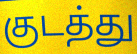
குடத்து